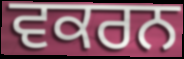
ਵਕਰਨ